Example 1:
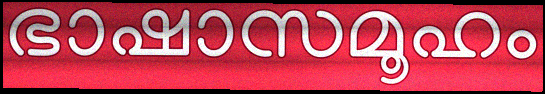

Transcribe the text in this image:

ഭാഷാസമൂഹം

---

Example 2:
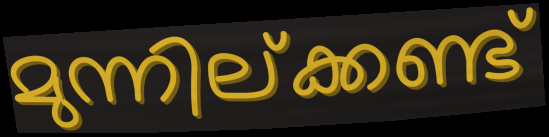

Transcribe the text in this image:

മുന്നില്ക്കണ്ട്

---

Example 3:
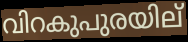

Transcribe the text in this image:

വിറകുപുരയില്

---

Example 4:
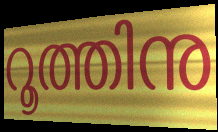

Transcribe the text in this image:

റൂത്തിനു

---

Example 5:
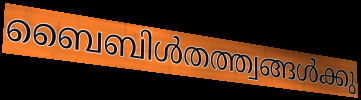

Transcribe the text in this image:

ബൈബിൾതത്ത്വങ്ങൾക്കു